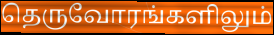
தெருவோரங்களிலும்